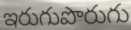
ఇరుగుపొరుగు